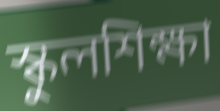
স্কুলশিক্ষা